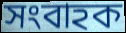
সংবাহক